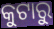
କୁଟାରୁ